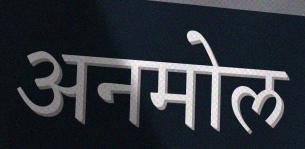
अनमोल